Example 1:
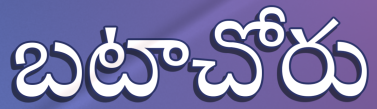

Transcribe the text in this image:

బటాచోరు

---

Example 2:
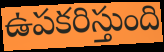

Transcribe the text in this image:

ఉపకరిస్తుంది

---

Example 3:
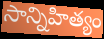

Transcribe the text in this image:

సాన్నిహిత్యం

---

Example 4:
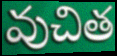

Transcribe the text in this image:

వుచిత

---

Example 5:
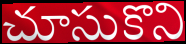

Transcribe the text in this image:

చూసుకొని